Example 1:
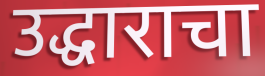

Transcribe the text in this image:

उद्धाराचा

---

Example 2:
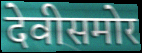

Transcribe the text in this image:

देवीसमोर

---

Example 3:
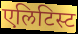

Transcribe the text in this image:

एलिटिस्ट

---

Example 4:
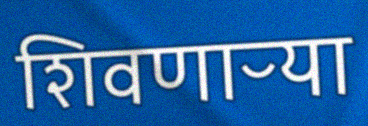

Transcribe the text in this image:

शिवणाऱ्या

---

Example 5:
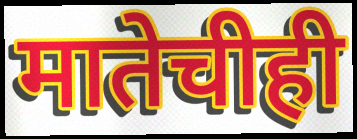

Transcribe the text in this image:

मातेचीही